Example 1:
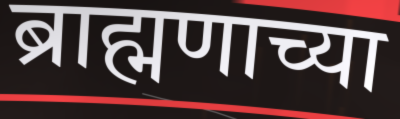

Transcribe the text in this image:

ब्राह्मणाच्या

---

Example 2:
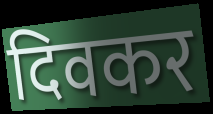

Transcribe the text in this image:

दिवकर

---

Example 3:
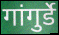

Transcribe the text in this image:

गांगुर्डे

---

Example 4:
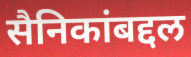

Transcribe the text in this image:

सैनिकांबद्दल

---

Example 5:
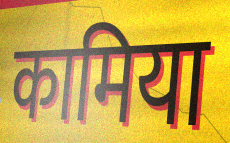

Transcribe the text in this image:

कामिया